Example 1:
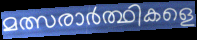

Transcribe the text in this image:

മത്സരാർത്ഥികളെ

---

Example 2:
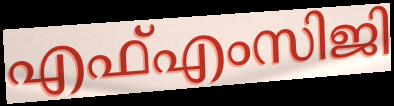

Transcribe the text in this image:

എഫ്എംസിജി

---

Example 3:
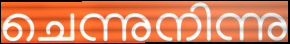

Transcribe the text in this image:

ചെന്നുനിന്നു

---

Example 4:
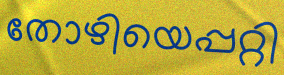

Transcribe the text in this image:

തോഴിയെപ്പറ്റി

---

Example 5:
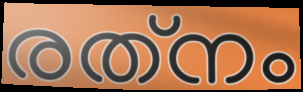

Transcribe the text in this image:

രത്‌നം